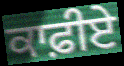
ਕਾਫ਼ੀਏ